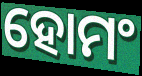
ହୋମଂ